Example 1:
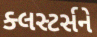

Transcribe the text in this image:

ક્લસ્ટર્સને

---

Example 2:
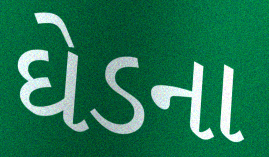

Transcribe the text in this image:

ઘેડના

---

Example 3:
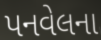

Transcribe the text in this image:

પનવેલના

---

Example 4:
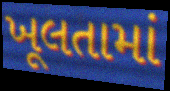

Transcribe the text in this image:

ખૂલતામાં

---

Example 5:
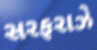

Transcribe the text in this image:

સરફરાઝે